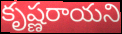
కృష్ణరాయని